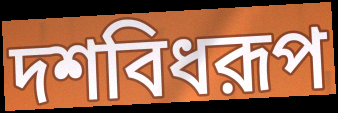
দশবিধরূপ